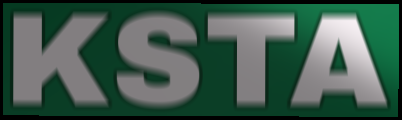
KSTA